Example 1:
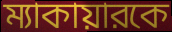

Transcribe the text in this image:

ম্যাকায়ারকে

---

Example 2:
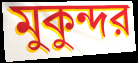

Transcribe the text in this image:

মুকুন্দর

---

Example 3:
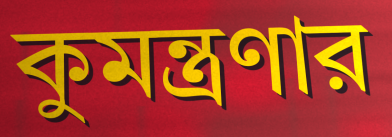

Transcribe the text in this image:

কুমন্ত্রণার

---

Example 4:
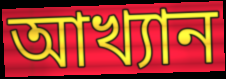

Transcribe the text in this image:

আখ্যান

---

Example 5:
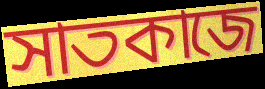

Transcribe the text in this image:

সাতকাজে